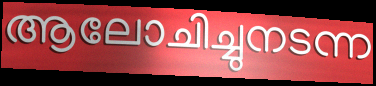
ആലോചിച്ചുനടന്ന